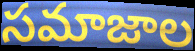
సమాజాల